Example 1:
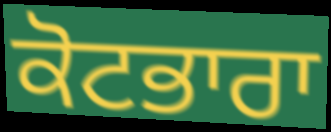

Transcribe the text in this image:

ਕੋਟਭਾਰਾ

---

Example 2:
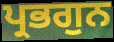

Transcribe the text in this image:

ਪ੍ਰਭਗੁਨ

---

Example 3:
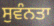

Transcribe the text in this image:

ਸੁਵੰਨਤਾ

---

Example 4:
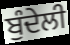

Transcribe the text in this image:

ਬੁੰਦੇਲੀ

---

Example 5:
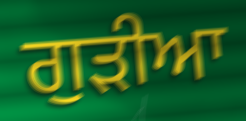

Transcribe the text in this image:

ਗੁੜੀਆ